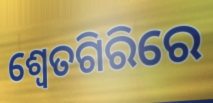
ଶ୍ୱେତଗିରିରେ